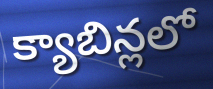
క్యాబిన్లలో